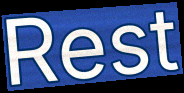
Rest